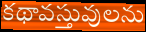
కథావస్తువులను